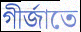
গীর্জাতে